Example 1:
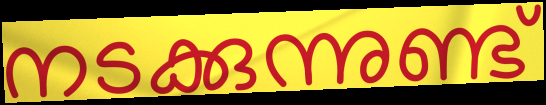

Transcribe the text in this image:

നടക്കുന്നുണ്ട്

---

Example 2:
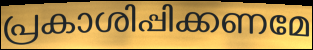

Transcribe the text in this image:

പ്രകാശിപ്പിക്കണമേ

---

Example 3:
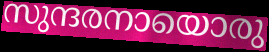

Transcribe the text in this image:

സുന്ദരനായൊരു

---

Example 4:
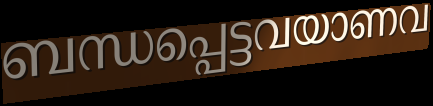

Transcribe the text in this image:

ബന്ധപ്പെട്ടവയാണവ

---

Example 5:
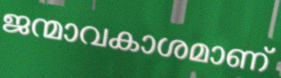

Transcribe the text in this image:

ജന്മാവകാശമാണ്